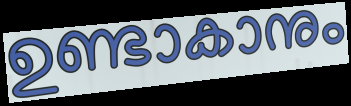
ഉണ്ടാകാനും